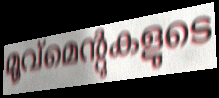
മൂവ്മെന്റുകളുടെ